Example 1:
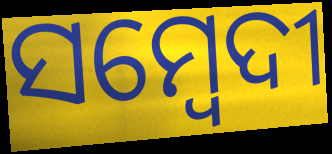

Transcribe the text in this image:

ସମ୍ବେଦୀ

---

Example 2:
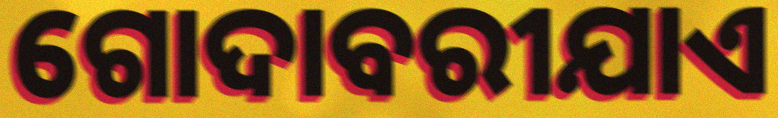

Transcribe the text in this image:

ଗୋଦାବରୀଯାଏ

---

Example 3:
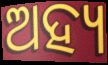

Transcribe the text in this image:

ଅହ୍ୟ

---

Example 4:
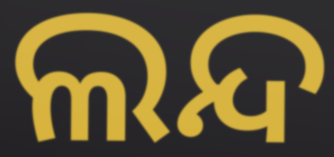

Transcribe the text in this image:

ଲନ୍ଦ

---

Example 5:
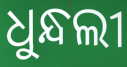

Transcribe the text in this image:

ଧୁନ୍ଧଲୀ